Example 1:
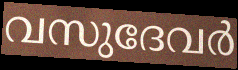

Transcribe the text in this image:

വസുദേവർ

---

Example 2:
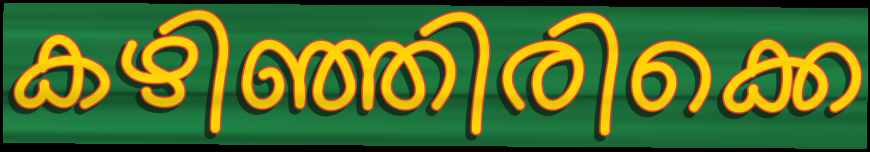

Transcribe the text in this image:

കഴിഞ്ഞിരിക്കെ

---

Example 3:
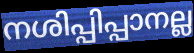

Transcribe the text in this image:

നശിപ്പിപ്പാനല്ല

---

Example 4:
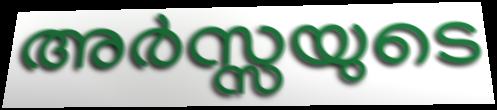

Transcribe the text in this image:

അർസ്സയുടെ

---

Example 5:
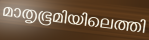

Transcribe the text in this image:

മാതൃഭൂമിയിലെത്തി